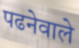
पढनेवाले